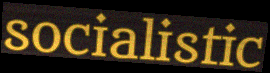
socialistic